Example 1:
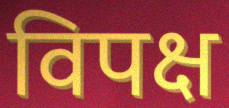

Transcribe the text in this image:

विपक्ष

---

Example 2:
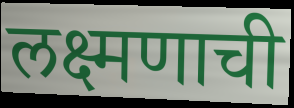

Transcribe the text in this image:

लक्ष्मणाची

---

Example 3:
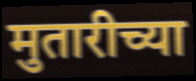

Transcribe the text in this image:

मुतारीच्या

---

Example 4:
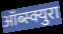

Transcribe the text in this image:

ऑब्स्क्युरा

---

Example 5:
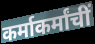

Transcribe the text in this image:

कर्माकर्मांचीं